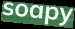
soapy